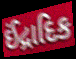
ઈંદ્રાદિક